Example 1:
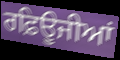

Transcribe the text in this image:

ਰਫ਼ਿਊਜੀਆਂ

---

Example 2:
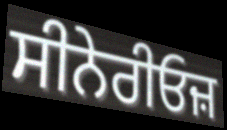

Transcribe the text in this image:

ਸੀਨੇਰੀਓਜ਼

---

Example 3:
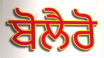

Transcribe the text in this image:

ਬੋਲੈਰੋ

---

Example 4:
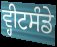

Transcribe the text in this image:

ਵ੍ਹੀਟਸੰਡੇ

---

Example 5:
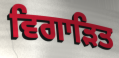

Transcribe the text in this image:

ਵਿਗਾੜਿਤ